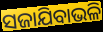
ସଜାଯିବାଭଳି